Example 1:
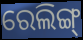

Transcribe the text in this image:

ରେଲିଙ୍ଗ୍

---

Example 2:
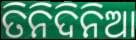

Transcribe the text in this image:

ତିନିଦିନିଆ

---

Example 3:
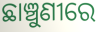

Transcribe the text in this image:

ଛାଞ୍ଚୁଣୀରେ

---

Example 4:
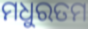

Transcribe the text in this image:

ମଧୁରତମ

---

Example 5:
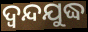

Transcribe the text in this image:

ଦ୍ୱନ୍ଦଯୁଦ୍ଧ